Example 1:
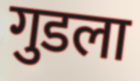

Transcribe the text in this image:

गुडला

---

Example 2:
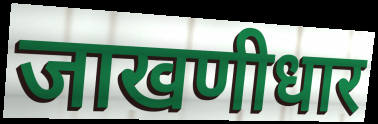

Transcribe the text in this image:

जाखणीधार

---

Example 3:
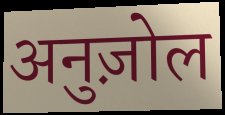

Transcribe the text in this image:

अनुज़ोल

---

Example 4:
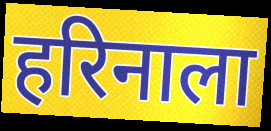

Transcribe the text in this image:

हरिनाला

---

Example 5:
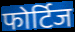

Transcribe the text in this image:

फोर्टिज